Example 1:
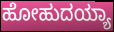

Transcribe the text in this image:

ಹೋಹುದಯ್ಯಾ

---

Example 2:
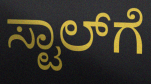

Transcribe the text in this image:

ಸ್ಟಾಲ್‌ಗೆ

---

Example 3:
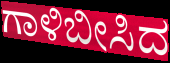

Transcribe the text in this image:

ಗಾಳಿಬೀಸಿದ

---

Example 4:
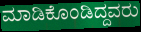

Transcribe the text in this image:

ಮಾಡಿಕೊಂಡಿದ್ದವರು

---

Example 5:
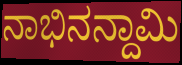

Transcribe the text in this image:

ನಾಭಿನನ್ದಾಮಿ